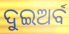
ଦୁଇଅର୍ବ